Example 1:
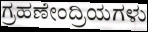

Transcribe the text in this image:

ಗ್ರಹಣೇಂದ್ರಿಯಗಳು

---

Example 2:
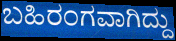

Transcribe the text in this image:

ಬಹಿರಂಗವಾಗಿದ್ದು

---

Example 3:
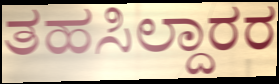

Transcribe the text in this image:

ತಹಸಿಲ್ದಾರರ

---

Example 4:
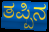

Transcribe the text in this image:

ತಪ್ಪಿನ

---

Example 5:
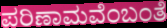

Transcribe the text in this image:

ಪರಿಣಾಮವೆಂಬಂತೆ